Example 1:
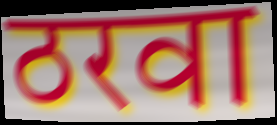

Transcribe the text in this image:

ठरवा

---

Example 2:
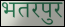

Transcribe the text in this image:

भतरपुर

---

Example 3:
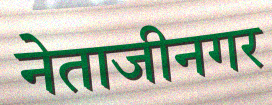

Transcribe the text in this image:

नेताजीनगर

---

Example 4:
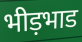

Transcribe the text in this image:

भीड़भाड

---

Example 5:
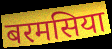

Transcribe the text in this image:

बरमसिया